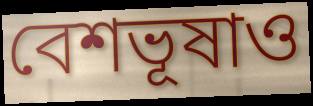
বেশভূষাও